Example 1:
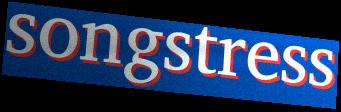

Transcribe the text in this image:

songstress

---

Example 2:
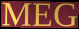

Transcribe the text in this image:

MEG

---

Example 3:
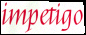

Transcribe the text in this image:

impetigo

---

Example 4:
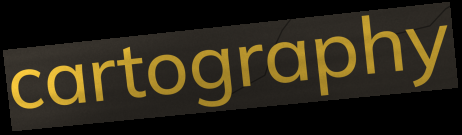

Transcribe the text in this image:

cartography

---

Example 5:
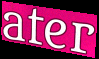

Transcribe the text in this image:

ater